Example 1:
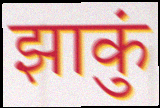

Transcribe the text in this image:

झाकुं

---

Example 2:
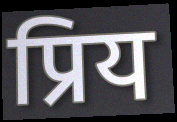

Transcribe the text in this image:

प्रिय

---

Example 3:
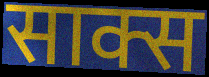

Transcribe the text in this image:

साक्स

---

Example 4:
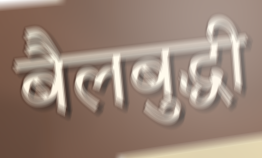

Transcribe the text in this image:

बैलबुद्धी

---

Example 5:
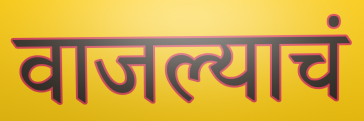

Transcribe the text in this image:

वाजल्याचं